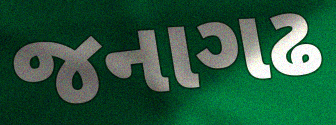
જનાગઢ